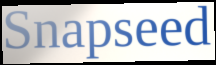
Snapseed